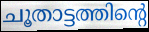
ചൂതാട്ടത്തിന്റെ